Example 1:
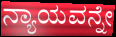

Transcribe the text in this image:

ನ್ಯಾಯವನ್ನೇ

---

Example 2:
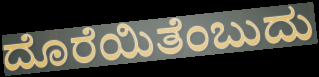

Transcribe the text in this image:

ದೊರೆಯಿತೆಂಬುದು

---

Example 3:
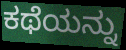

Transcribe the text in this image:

ಕಥೆಯನ್ನು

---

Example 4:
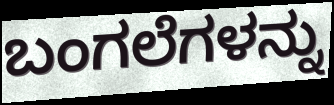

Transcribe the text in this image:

ಬಂಗಲೆಗಳನ್ನು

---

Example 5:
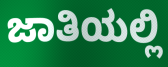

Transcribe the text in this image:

ಜಾತಿಯಲ್ಲಿ